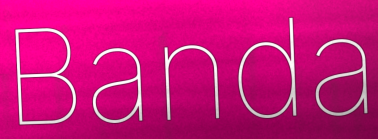
Banda